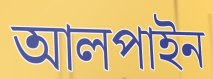
আলপাইন